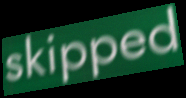
skipped